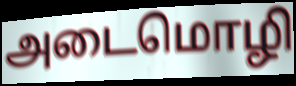
அடைமொழி